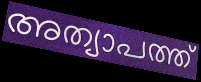
അത്യാപത്ത്